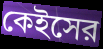
কেইসের